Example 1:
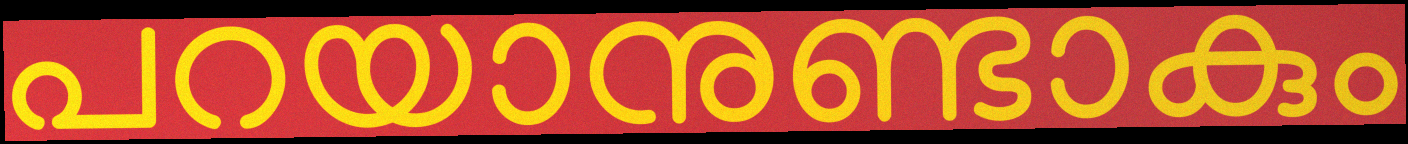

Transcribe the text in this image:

പറയാനുണ്ടാകും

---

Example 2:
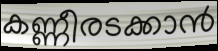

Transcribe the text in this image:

കണ്ണീരടക്കാൻ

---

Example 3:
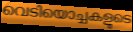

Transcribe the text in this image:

വെടിയൊച്ചകളുടെ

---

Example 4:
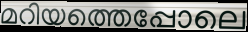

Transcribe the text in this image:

മറിയത്തെപ്പോലെ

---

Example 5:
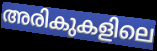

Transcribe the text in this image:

അരികുകളിലെ